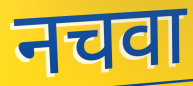
नचवा